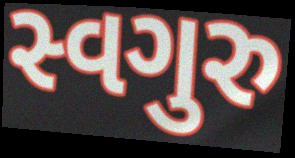
સ્વગુરુ